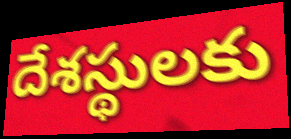
దేశస్థులకు